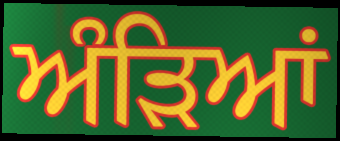
ਅੰੜਿਆਂ